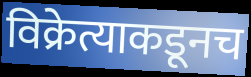
विक्रेत्याकडूनच